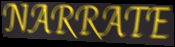
NARRATE